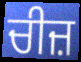
ਚੀਜ਼